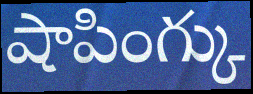
షాపింగ్కు